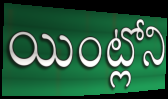
యింట్లోని